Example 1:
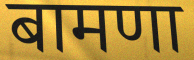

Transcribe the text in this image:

बामणा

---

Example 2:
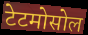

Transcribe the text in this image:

टेटमोसोल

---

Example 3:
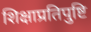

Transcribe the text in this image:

शिक्षाप्रतिपुष्टि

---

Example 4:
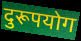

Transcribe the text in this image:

दुरूपयोग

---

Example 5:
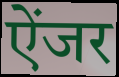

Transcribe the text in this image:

ऐंजर